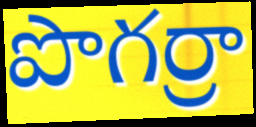
పొగర్రా